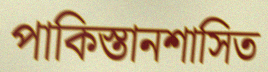
পাকিস্তানশাসিত